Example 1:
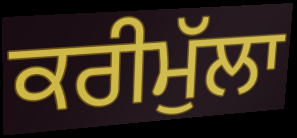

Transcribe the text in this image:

ਕਰੀਮੁੱਲਾ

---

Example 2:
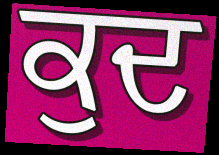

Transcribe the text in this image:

ਕੁਦ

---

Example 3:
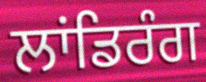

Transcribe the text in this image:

ਲਾਂਡਿਰੰਗ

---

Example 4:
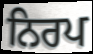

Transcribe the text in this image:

ਨਿਰਪ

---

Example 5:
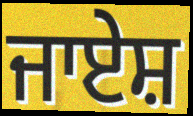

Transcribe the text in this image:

ਜਾਏਸ਼